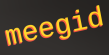
meegid